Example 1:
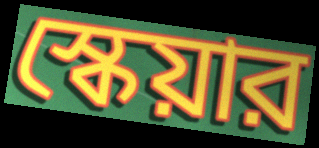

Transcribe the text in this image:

স্কেয়ার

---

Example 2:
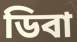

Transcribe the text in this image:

ডিবা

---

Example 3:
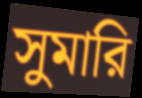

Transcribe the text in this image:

সুমারি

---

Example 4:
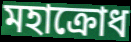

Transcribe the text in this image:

মহাক্রোধ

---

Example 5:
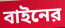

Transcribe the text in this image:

বাইনের